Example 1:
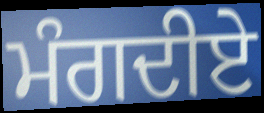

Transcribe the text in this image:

ਮੰਗਦੀਏ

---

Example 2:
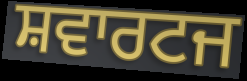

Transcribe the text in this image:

ਸ਼ਵਾਰਟਜ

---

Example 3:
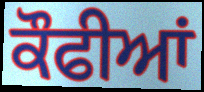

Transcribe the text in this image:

ਕੌਫੀਆਂ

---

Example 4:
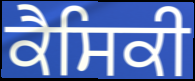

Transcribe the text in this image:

ਕੈਸਿਕੀ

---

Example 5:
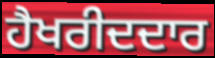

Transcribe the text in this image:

ਹੈਖਰੀਦਦਾਰ